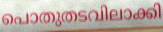
പൊതുതടവിലാക്കി